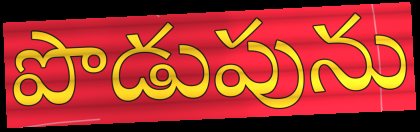
పొడుపును